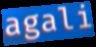
agali